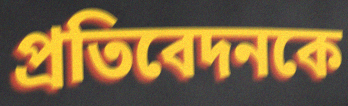
প্রতিবেদনকে